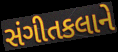
સંગીતકલાને